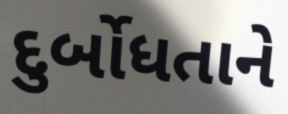
દુર્બોધતાને